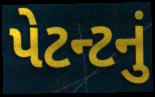
પેટન્ટનું